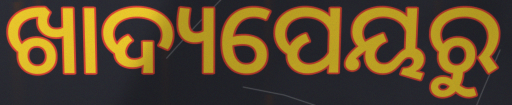
ଖାଦ୍ୟପେୟରୁ